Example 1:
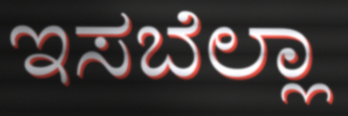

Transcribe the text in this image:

ಇಸಬೆಲ್ಲಾ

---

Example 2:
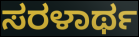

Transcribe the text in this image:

ಸರಳಾರ್ಥ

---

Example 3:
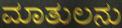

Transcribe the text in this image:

ಮಾತುಲನು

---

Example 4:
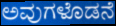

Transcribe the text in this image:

ಅವುಗಳೊಡನೆ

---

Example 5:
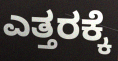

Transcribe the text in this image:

ಎತ್ತರಕ್ಕೆ